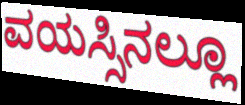
ವಯಸ್ಸಿನಲ್ಲೂ